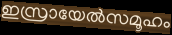
ഇസ്രായേൽസമൂഹം